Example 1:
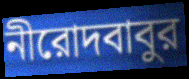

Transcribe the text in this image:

নীরোদবাবুর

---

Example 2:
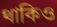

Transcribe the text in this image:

থাকিও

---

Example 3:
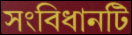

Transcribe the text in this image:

সংবিধানটি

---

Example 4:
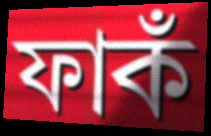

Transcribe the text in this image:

ফাকঁ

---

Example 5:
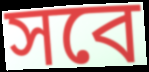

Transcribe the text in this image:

সবে